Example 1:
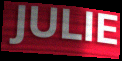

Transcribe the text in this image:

JULIE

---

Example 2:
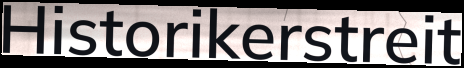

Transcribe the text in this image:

Historikerstreit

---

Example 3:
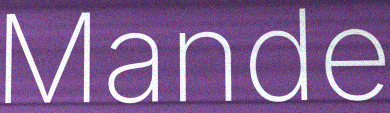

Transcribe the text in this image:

Mande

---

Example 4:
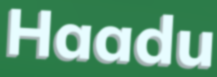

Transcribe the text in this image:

Haadu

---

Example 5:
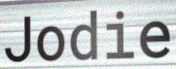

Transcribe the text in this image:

Jodie